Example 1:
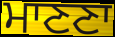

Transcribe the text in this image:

ਮਾਣਣਾ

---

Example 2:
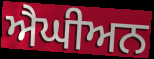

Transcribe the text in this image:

ਐਘੀਅਨ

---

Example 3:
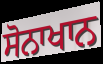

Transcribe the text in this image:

ਸੋਨਾਖਾਨ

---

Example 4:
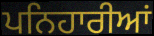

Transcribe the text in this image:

ਪਨਿਹਾਰੀਆਂ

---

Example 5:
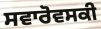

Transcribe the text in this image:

ਸਵਾਰੋਵਸਕੀ